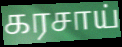
கரசாய்